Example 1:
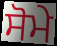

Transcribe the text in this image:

ਸੋਮੇ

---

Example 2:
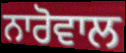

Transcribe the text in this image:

ਨਾਰੋਵਾਲ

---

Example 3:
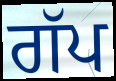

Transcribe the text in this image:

ਗੱਪ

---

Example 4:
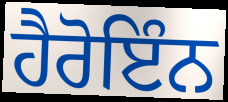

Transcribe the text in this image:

ਹੈਰੋਇੰਨ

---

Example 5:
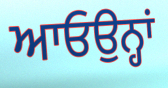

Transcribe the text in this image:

ਆਓਉਨ੍ਹਾਂ